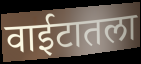
वाईटातला